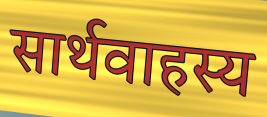
सार्थवाहस्य